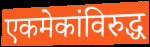
एकमेकांविरुद्ध